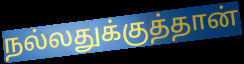
நல்லதுக்குத்தான்